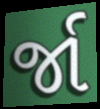
ર્જા